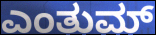
ಎಂತುಮ್